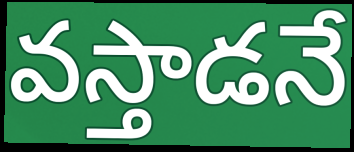
వస్తాడనే